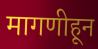
मागणीहून